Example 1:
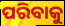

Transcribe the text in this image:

ପରିବାକୁ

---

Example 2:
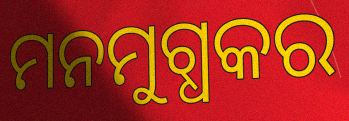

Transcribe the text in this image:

ମନମୁଗ୍ଧକର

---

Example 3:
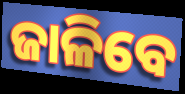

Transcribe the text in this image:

ଜାଳିବେ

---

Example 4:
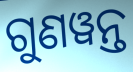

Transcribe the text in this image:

ଗୁଣୱନ୍ତ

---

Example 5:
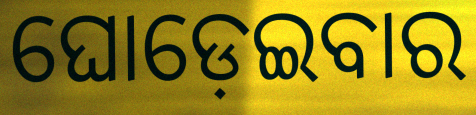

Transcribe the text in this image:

ଘୋଡ଼େଇବାର